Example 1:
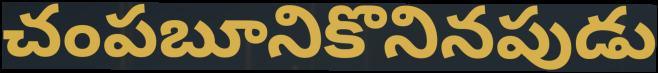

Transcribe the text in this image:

చంపబూనికొనినపుడు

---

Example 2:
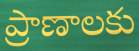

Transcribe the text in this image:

ప్రాణాలకు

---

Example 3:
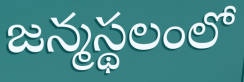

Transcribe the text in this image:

జన్మస్థలంలో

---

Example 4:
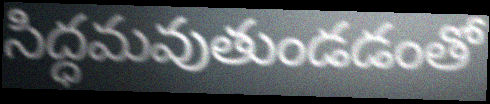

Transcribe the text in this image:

సిద్ధమవుతుండడంతో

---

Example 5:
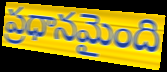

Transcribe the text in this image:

ప్రధానమైంది